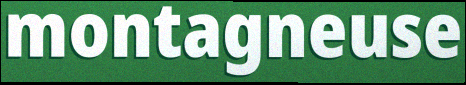
montagneuse